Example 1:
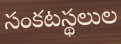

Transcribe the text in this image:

సంకటస్థలుల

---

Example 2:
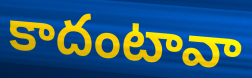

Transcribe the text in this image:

కాదంటావా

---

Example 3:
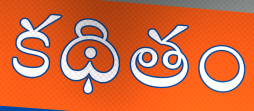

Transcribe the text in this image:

కథితం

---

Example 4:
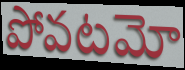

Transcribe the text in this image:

పోవటమో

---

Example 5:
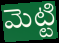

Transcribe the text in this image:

మెట్టి